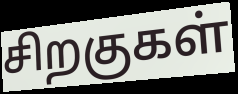
சிறகுகள்